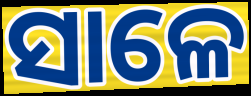
ସାଳେ